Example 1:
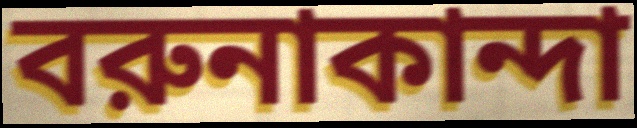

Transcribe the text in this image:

বরুনাকান্দা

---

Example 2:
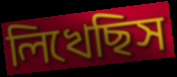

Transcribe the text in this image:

লিখেছিস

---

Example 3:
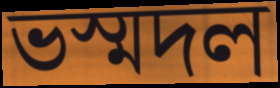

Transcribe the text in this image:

ভস্মদল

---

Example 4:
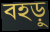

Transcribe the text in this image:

বহড়ু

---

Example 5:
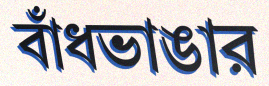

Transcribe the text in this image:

বাঁধভাঙার